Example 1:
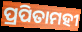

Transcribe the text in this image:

ପ୍ରପିତାମହୀ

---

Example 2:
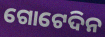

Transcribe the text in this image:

ଗୋଟେଦିନ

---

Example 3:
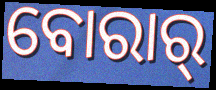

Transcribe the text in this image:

ବୋରାର୍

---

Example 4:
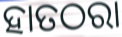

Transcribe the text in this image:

ହାତଠରା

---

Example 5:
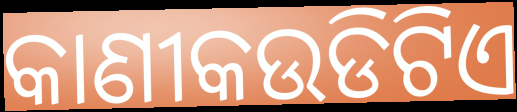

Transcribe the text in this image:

କାଣୀକଉଡିଟିଏ